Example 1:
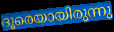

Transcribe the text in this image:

ദൂരെയായിരുന്നു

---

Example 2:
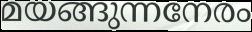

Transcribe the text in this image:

മയങ്ങുന്നനേരം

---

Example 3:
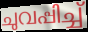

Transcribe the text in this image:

ചുവപ്പിച്ച്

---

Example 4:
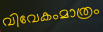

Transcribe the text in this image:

വിവേകംമാത്രം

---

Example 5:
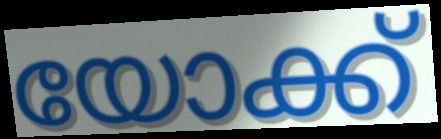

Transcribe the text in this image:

യോക്ക്